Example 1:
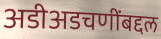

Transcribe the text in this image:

अडीअडचणींबद्दल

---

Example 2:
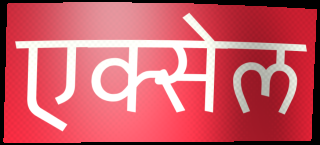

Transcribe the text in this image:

एक्सेल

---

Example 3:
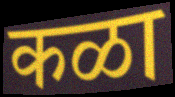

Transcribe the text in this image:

कळा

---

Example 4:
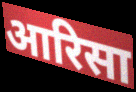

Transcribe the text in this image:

आरिसा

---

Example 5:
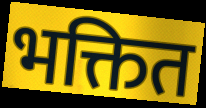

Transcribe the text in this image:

भक्तित